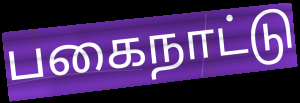
பகைநாட்டு